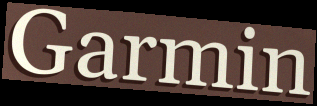
Garmin